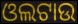
ଓଲଟାଉ